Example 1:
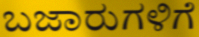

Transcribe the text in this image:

ಬಜಾರುಗಳಿಗೆ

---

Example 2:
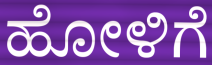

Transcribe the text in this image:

ಹೋಳಿಗೆ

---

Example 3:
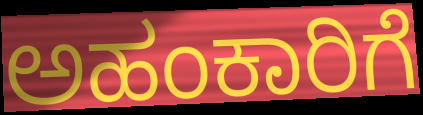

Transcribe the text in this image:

ಅಹಂಕಾರಿಗೆ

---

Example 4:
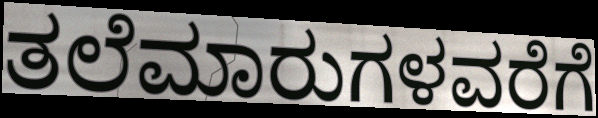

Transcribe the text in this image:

ತಲೆಮಾರುಗಳವರೆಗೆ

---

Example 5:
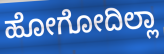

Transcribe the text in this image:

ಹೋಗೋದಿಲ್ಲಾ